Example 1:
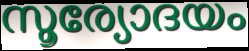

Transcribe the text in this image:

സൂര്യോദയം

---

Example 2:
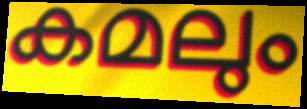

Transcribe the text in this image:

കമലും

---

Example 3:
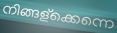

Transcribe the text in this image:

നിങ്ങള്ക്കെന്നെ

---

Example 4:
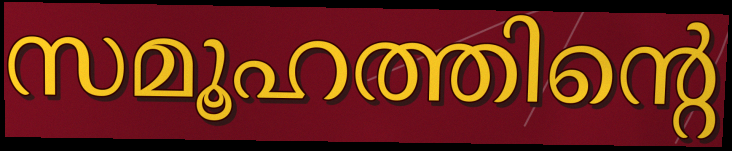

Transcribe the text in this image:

സമൂഹത്തിന്റെ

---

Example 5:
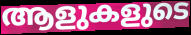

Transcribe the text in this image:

ആളുകളുടെ